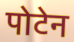
पोटेन